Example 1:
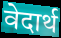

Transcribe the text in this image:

वेदार्थ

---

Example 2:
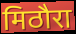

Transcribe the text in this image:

मिठौरा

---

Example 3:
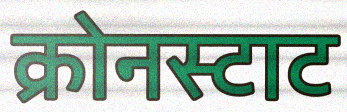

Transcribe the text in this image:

क्रोनस्टाट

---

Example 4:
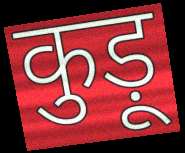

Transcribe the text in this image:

कुड़ू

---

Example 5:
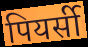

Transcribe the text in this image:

पियर्सी